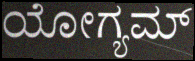
ಯೋಗ್ಯಮ್